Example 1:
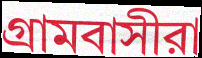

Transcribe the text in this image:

গ্রামবাসীরা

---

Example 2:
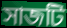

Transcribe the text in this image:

সাজটি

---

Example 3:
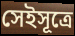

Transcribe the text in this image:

সেইসূত্রে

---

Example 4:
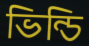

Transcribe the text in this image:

ভিন্ডি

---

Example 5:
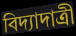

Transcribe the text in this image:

বিদ্যাদাত্রী